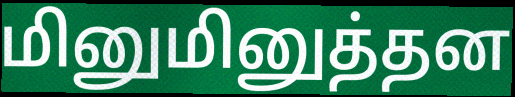
மினுமினுத்தன